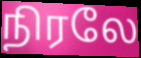
நிரலே